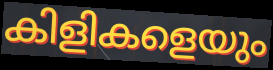
കിളികളെയും